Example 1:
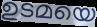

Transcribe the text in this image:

ഉടമയെ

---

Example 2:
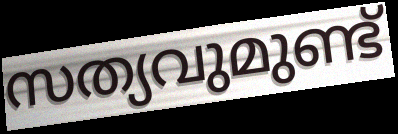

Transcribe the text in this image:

സത്യവുമുണ്ട്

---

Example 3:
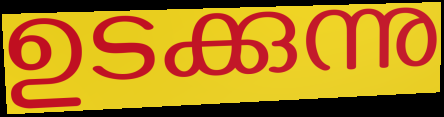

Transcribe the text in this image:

ഉടക്കുന്നു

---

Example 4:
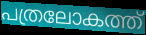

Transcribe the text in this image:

പത്രലോകത്ത്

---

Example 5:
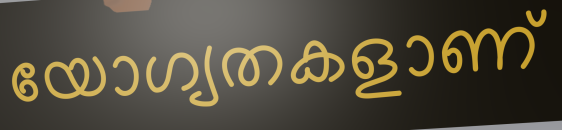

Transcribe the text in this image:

യോഗ്യതകളാണ്